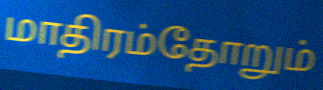
மாதிரம்தோறும்